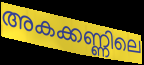
അകക്കണ്ണിലെ